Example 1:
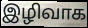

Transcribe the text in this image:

இழிவாக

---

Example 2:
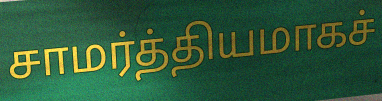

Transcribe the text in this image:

சாமர்த்தியமாகச்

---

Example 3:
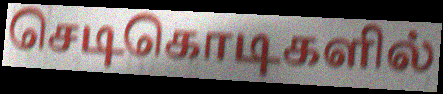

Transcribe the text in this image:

செடிகொடிகளில்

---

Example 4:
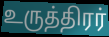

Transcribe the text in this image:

உருத்திரர்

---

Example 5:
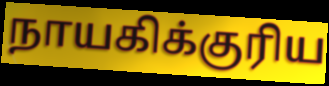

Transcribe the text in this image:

நாயகிக்குரிய